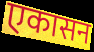
एकासन